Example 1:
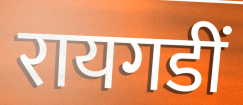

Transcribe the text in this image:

रायगडीं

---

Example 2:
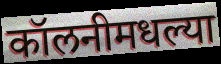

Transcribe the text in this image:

कॉलनीमधल्या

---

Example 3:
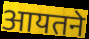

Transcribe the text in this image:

आयतने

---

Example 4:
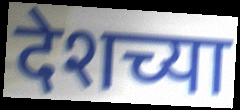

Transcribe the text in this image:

देशच्या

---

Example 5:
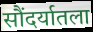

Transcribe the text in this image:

सौंदर्यातला